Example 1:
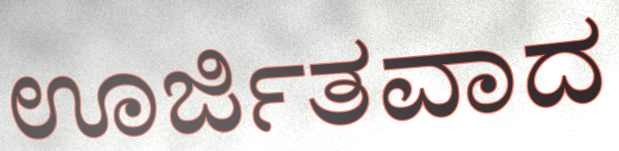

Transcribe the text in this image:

ಊರ್ಜಿತವಾದ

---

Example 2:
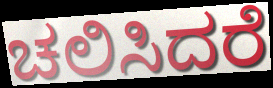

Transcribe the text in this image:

ಚಲಿಸಿದರೆ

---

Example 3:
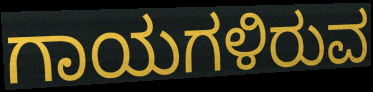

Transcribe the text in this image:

ಗಾಯಗಳಿರುವ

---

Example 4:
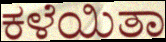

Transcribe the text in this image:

ಕಳೆಯಿತಾ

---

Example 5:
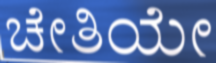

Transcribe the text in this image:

ಚೇತಿಯೇ